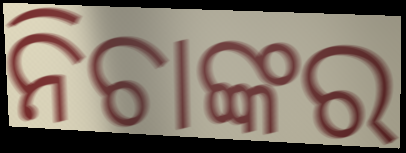
ନିଚାଙ୍କର